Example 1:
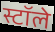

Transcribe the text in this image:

स्टॉले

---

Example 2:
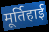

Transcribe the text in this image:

मूर्तिहाई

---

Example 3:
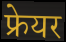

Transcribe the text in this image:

फ्रेयर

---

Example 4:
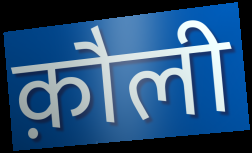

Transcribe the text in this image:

क़ौली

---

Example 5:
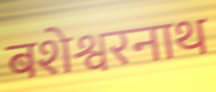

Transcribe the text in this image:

बशेश्वरनाथ